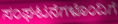
ಸಂಘಟನೆಗಳೊಂದಿಗೆ